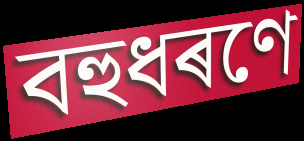
বহুধৰণে